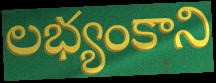
లభ్యంకాని